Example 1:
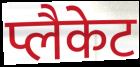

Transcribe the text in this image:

प्लैकेट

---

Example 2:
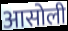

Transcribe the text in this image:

आसोली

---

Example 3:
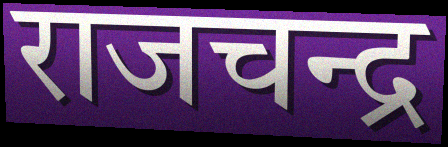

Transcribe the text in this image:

राजचन्द्र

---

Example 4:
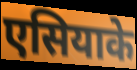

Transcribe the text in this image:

एसियाके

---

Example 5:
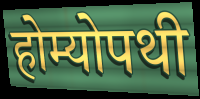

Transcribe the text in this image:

होम्योपथी